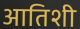
आतिशी